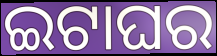
ଇଟାଘର